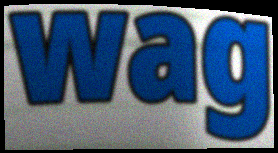
wag